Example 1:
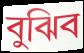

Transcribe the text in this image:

বুঝিব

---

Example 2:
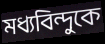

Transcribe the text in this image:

মধ্যবিন্দুকে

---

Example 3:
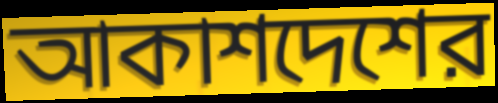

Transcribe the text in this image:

আকাশদেশের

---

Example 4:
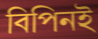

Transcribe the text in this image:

বিপিনই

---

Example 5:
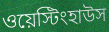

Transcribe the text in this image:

ওয়েস্টিংহাউস